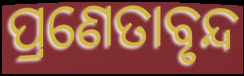
ପ୍ରଣେତାବୃନ୍ଦ